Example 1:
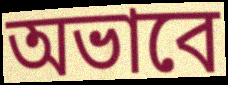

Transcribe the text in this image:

অভাবে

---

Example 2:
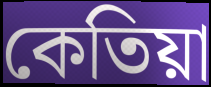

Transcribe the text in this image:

কেতিয়া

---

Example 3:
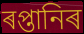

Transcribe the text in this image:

ৰপ্তানিৰ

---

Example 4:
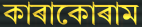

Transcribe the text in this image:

কাৰাকোৰাম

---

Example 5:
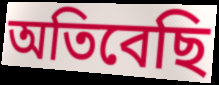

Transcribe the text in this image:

অতিবেছি